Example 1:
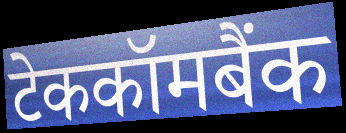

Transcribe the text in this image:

टेककॉमबैंक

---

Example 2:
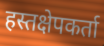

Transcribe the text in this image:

हस्तक्षेपकर्ता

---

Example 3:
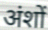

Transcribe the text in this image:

अंशों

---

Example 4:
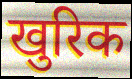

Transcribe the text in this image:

खुरिक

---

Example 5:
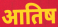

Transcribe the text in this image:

आतिष